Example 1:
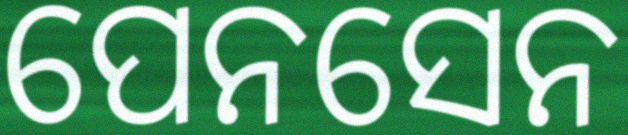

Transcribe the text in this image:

ପେନସେନ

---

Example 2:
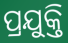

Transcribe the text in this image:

ପ୍ରଯୁକ୍ତି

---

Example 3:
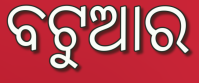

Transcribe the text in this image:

ବଟୁଆର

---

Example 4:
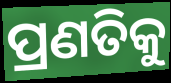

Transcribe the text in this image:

ପ୍ରଣତିକୁ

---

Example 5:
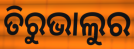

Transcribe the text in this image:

ତିରୁଭାଲୁର